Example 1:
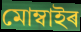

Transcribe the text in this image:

মোম্বাইৰ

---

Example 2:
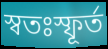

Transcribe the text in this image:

স্বতঃস্ফূৰ্ত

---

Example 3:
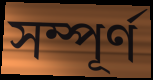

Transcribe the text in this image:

সম্পূৰ্ণ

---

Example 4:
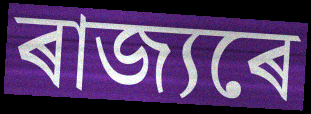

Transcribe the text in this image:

ৰাজ্যৰে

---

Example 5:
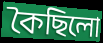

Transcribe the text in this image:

কৈছিলো